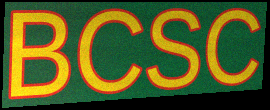
BCSC